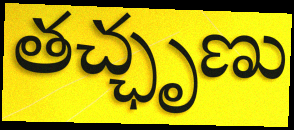
తచ్ఛృణు